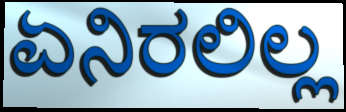
ಏನಿರಲಿಲ್ಲ